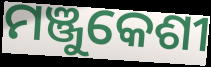
ମଞ୍ଜୁକେଶୀ